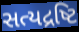
સત્યદ્રષ્ટિ